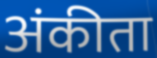
अंकीता